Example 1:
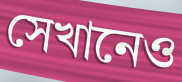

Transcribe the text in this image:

সেখানেও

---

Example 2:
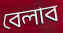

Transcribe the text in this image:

বেলাব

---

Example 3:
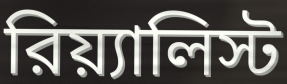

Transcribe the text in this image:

রিয়্যালিস্ট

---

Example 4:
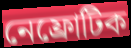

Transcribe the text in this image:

নেফ্রোটিক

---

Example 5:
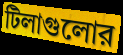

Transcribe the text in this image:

টিলাগুলোর